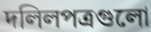
দলিলপত্রগুলো